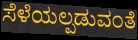
ಸೆಳೆಯಲ್ಪಡುವಂತೆ